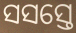
ସସସ୍ତେ